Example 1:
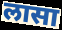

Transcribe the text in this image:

लासा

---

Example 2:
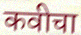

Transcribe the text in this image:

कवीचा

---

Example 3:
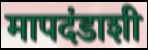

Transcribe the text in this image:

मापदंडाशी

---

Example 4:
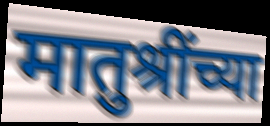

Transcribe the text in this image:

मातुश्रींच्या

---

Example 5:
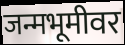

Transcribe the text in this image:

जन्मभूमीवर